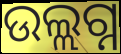
ଉଲ୍ଲଗ୍ନ